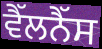
ਵੈੱਲਨੈੱਸ